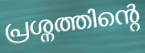
പ്രശ്നത്തിന്റെ